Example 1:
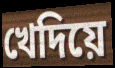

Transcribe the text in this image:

খেদিয়ে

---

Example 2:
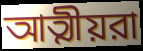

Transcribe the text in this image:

আত্মীয়রা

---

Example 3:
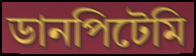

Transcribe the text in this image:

ডানপিটেমি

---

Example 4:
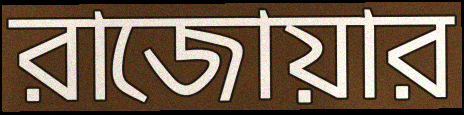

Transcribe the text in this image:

রাজোয়ার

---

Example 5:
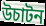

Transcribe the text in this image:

উচাটন